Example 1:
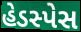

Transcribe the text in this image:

હેડસ્પેસ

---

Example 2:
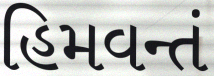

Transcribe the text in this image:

હિમવન્તં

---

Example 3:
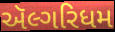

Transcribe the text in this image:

ઍલ્ગરિધમ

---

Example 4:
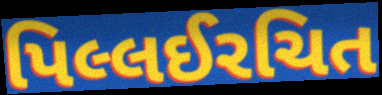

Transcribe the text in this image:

પિલ્લઈરચિત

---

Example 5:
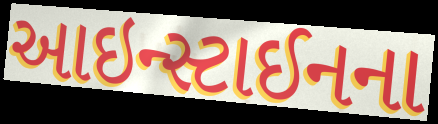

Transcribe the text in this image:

આઇન્સ્ટાઈનના